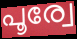
പൂര്വേ